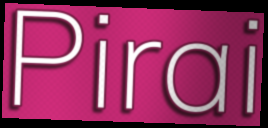
Pirai